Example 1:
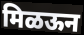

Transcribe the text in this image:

मिळऊन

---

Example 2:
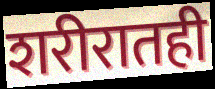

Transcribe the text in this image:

शरीरातही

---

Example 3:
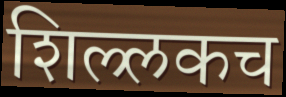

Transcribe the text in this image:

शिल्लकच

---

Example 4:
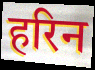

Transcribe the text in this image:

हरिन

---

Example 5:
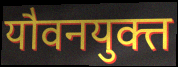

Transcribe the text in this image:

यौवनयुक्त